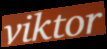
viktor